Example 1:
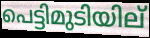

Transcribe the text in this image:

പെട്ടിമുടിയില്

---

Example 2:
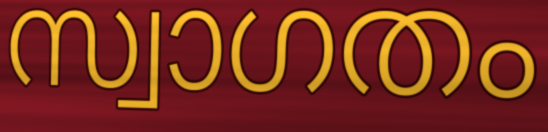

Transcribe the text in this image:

സ്വാഗതം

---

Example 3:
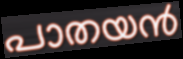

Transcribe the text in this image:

പാതയൻ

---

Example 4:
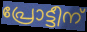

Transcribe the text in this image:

പ്രോട്ടീന്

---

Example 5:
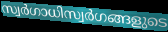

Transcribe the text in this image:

സ്വർഗാധിസ്വർഗങ്ങളുടെ